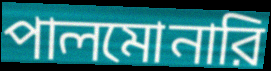
পালমোনারি